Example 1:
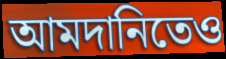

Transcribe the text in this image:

আমদানিতেও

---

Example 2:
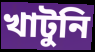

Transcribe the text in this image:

খাটুনি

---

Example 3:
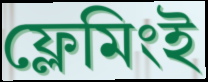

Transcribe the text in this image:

ফ্লেমিংই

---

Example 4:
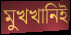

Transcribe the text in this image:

মুখখানিই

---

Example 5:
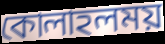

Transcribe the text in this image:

কোলাহলময়